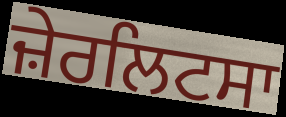
ਜ਼ੇਰਲਿਟਸਾ